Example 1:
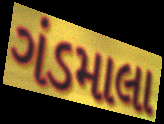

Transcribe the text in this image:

ગંડમાલા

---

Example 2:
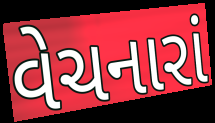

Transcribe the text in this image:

વેચનારાં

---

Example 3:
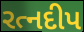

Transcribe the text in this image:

રત્નદીપ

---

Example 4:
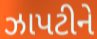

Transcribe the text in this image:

ઝાપટીને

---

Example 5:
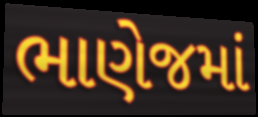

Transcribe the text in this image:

ભાણેજમાં